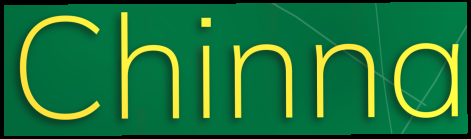
Chinna